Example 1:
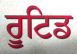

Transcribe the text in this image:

ਰੂਟਿਡ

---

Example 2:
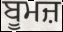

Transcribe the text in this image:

ਬੂਮਜ਼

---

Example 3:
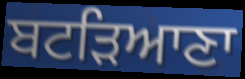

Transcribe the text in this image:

ਬਟੜਿਆਣਾ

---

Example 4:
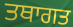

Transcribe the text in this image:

ਤਥਾਗਤ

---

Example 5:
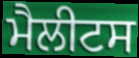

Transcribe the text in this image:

ਮੈਲੀਟਸ